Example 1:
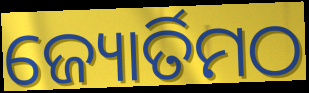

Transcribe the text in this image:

ଜ୍ୟୋର୍ତିମଠ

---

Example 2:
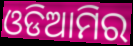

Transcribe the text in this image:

ଓଡିଆମିର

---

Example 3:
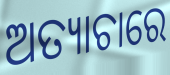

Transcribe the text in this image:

ଅତ୍ୟାଚାରେ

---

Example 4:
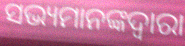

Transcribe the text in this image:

ସଭ୍ୟମାନଙ୍କଦ୍ୱାରା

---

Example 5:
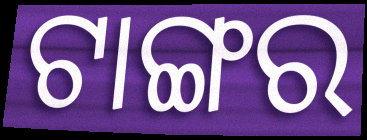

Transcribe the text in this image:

ଟାଙ୍ଗର